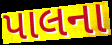
પાલના